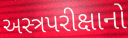
અસ્ત્રપરીક્ષાનો